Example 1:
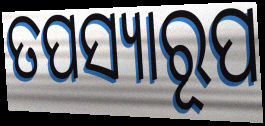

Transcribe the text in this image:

ତପସ୍ୟାରୂପ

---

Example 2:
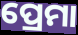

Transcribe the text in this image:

ପ୍ରେମା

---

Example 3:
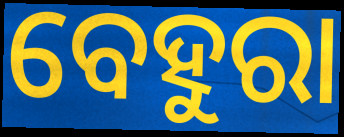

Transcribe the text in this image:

ବେହୁରା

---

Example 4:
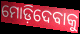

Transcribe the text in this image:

ମୋଡ଼ିଦେବାକୁ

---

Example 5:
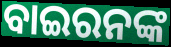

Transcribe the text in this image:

ବାଇରନଙ୍କ